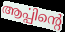
ആൎപ്പിന്റെ